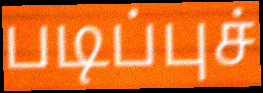
படிப்புச்